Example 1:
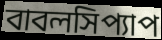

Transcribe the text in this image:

বাবলসিপ্যাপ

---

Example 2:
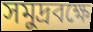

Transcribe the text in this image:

সমুদ্রবক্ষে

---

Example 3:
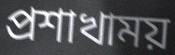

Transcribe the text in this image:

প্রশাখাময়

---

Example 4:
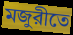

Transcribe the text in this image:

মজুরীতে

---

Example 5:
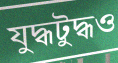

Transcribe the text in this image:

যুদ্ধটুদ্ধও